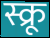
स्क्रू